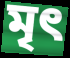
মৃৎ